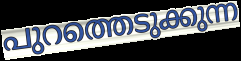
പുറത്തെടുക്കുന്ന